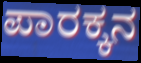
ಪಾರಕ್ಕನ